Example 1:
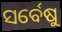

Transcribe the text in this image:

ସର୍ବେଷୁ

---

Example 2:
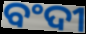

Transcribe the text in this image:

ବଂଦୀ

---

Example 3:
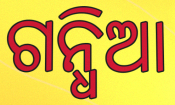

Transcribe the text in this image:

ଗନ୍ଧିଆ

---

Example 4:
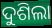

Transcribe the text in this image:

ଦୁଶିଲା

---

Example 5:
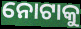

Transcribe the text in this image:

ନୋଟାକୁ